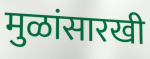
मुळांसारखी